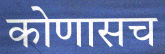
कोणासच